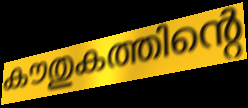
കൗതുകത്തിന്റെ